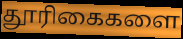
தூரிகைகளை